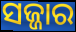
ସଜ୍ଜାର